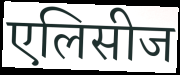
एलिसीज